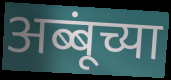
अब्बूंच्या